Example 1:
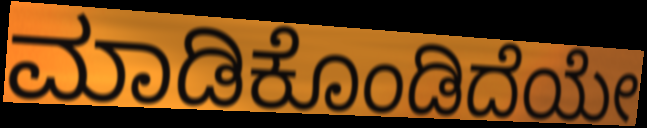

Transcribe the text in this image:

ಮಾಡಿಕೊಂಡಿದೆಯೇ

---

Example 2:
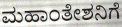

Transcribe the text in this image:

ಮಹಾಂತೇಶನಿಗೆ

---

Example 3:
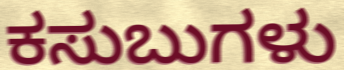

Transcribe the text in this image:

ಕಸುಬುಗಳು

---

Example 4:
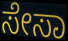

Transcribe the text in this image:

ಸೇಸಾ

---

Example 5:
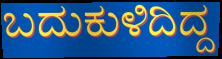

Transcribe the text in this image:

ಬದುಕುಳಿದಿದ್ದ